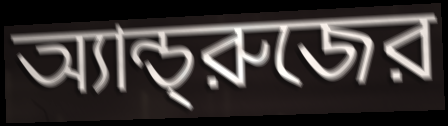
অ্যান্ড্‌রুজের